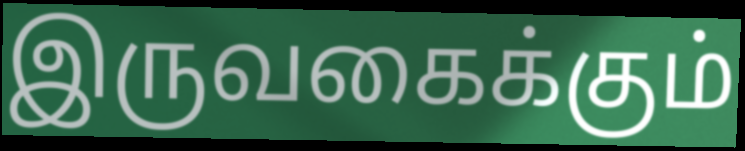
இருவகைக்கும்